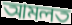
আমলত